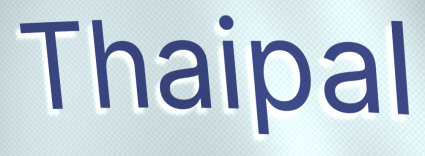
Thaipal